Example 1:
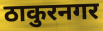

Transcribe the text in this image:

ठाकुरनगर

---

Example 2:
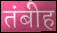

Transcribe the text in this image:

तंबीह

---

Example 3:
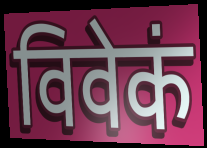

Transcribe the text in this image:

विवेकं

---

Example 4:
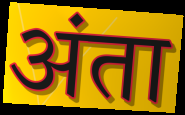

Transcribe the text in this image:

अंता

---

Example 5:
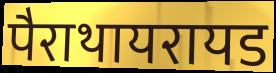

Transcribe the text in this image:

पैराथायरायड